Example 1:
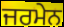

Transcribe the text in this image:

ਜਰਮੇਨ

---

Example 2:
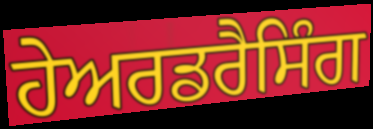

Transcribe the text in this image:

ਹੇਅਰਡਰੈਸਿੰਗ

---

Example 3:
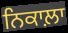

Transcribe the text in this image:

ਨਿਕਾਲ਼ਾ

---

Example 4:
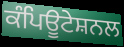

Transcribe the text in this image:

ਕੰਪਿਊਟੇਸ਼ਨਲ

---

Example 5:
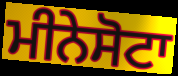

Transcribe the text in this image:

ਮੀਨੇਸੋਟਾ